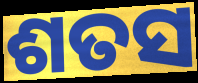
ଶତସ